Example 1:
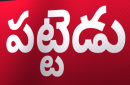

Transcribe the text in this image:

పట్టెడు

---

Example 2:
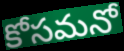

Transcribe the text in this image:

కోసమనో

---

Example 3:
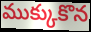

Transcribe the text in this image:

ముక్కుకొన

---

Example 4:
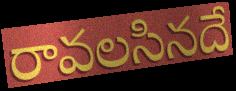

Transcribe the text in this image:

రావలసినదే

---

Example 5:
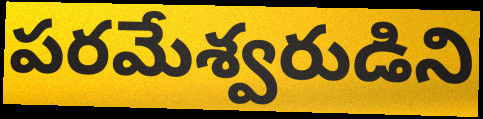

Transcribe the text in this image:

పరమేశ్వరుడిని